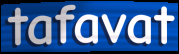
tafavat